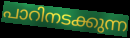
പാറിനടക്കുന്ന